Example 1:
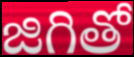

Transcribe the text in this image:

జిగితో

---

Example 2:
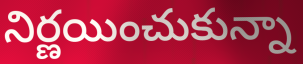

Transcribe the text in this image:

నిర్ణయించుకున్నా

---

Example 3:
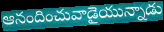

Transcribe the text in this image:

ఆనందించువాడైయున్నాడు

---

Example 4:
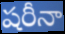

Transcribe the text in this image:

షరీనా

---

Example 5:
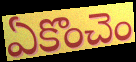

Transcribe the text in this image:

ఏకొంచెం